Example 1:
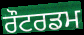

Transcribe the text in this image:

ਰੌਟਰਡਮ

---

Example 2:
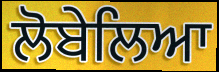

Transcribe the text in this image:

ਲੋਬੇਲਿਆ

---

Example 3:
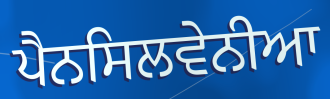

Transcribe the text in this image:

ਪੈਨਸਿਲਵੇਨੀਆ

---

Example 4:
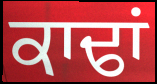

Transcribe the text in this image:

ਕਾਢਾਂ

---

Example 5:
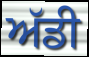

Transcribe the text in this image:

ਅੱਡੀ